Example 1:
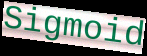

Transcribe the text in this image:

Sigmoid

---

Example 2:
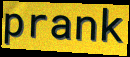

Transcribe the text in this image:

prank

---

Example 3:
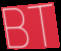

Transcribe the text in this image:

BT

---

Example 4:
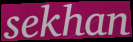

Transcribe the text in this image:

sekhan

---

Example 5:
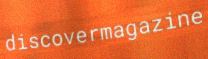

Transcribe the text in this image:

discovermagazine